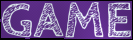
GAME